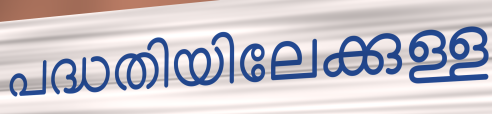
പദ്ധതിയിലേക്കുള്ള